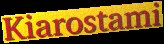
Kiarostami